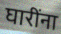
घारींना